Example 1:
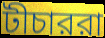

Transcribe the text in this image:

টীচাররা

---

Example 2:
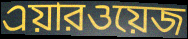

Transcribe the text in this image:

এয়ারওয়েজ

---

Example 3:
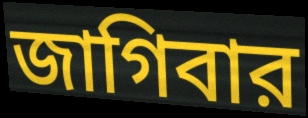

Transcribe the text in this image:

জাগিবার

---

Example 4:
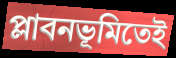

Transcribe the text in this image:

প্লাবনভূমিতেই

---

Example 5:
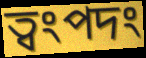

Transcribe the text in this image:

ত্বংপদং